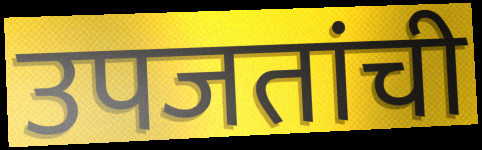
उपजतांची